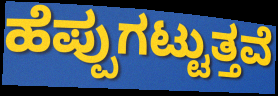
ಹೆಪ್ಪುಗಟ್ಟುತ್ತವೆ